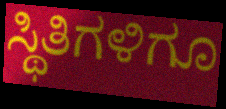
ಸ್ಥಿತಿಗಳಿಗೂ